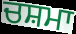
ਚਸ਼ਮਾ